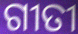
ଗୀତୀ